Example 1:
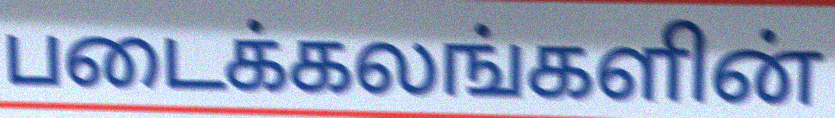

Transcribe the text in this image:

படைக்கலங்களின்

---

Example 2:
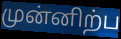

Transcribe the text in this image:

முன்னிற்ப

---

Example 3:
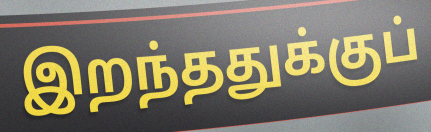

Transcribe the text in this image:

இறந்ததுக்குப்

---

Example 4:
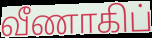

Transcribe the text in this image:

வீணாகிப்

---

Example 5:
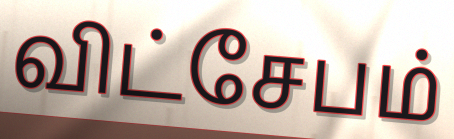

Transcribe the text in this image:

விட்சேபம்